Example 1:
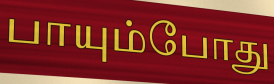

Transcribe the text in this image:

பாயும்போது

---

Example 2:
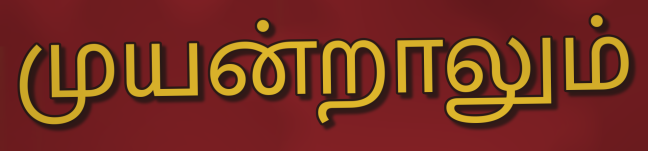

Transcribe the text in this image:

முயன்றாலும்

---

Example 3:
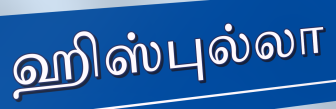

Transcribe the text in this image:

ஹிஸ்புல்லா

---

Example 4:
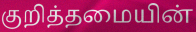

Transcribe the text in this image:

குறித்தமையின்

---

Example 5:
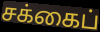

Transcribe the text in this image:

சக்கைப்